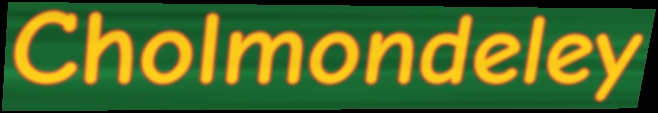
Cholmondeley